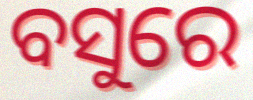
ବସୁରେ